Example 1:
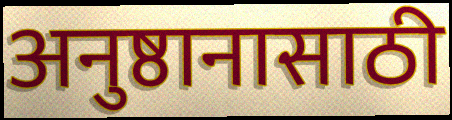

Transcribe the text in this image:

अनुष्ठानासाठी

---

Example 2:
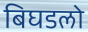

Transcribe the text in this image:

बिघडलो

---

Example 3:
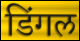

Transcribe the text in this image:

डिंगल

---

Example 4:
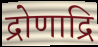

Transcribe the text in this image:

द्रोणाद्रि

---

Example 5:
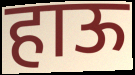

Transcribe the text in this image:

हाऊ